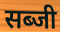
सब्जी